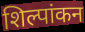
शिल्पांकन